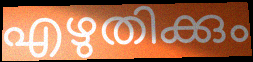
എഴുതിക്കും